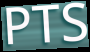
PTS